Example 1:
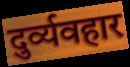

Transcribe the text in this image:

दुर्व्‍यवहार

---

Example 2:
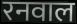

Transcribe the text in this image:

रनवाल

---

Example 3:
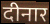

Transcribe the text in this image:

दीनार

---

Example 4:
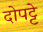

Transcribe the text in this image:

दोपट्टे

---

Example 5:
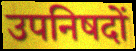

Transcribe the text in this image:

उपनिषदों